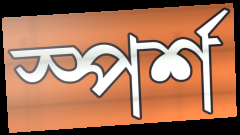
স্পর্শ